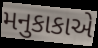
મનુકાકાએ